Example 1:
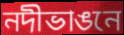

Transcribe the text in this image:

নদীভাঙনে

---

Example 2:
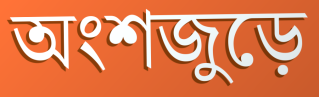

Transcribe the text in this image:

অংশজুড়ে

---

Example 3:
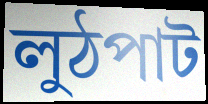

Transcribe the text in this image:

লুঠপাট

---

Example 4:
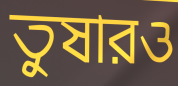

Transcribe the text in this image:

তুষারও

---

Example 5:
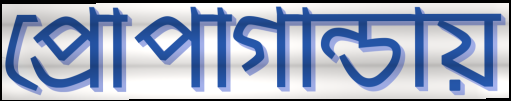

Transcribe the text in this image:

প্রোপাগান্ডায়